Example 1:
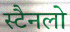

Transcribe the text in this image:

स्टैनलो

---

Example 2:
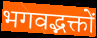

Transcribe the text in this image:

भगवद्भक्तों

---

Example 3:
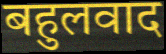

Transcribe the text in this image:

बहुलवाद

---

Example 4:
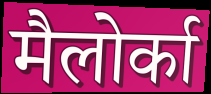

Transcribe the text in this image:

मैलोर्का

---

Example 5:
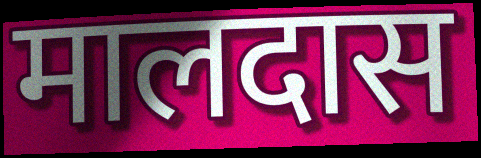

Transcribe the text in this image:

मालदास